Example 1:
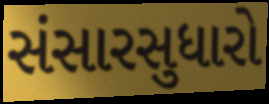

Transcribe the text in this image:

સંસારસુધારો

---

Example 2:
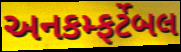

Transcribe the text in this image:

અનકમ્ફર્ટેબલ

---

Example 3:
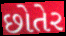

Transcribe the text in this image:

છોતેર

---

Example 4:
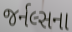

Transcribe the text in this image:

જર્નલ્સના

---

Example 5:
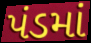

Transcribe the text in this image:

પંડમાં